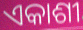
ଏକାଶୀ